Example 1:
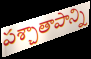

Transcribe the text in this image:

పశ్చాతాపాన్ని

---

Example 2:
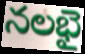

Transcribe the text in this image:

నలభై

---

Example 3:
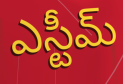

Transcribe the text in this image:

ఎస్టీమ్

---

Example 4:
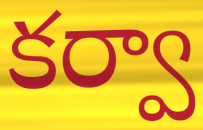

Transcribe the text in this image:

కర్వా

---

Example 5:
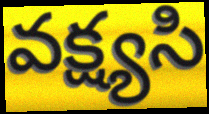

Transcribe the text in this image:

వక్ష్యసి